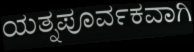
ಯತ್ನಪೂರ್ವಕವಾಗಿ